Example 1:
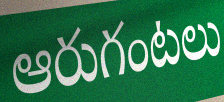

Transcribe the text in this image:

ఆరుగంటలు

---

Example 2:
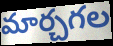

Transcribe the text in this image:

మార్చగల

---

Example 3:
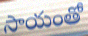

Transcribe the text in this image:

సాయంతో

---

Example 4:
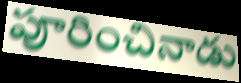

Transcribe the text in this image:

పూరించినాడు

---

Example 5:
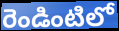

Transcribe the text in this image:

రెండింటిలో